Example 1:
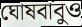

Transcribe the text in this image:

ঘোষবাবুও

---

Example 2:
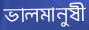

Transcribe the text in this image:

ভালমানুষী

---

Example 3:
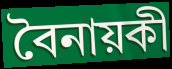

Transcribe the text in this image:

বৈনায়কী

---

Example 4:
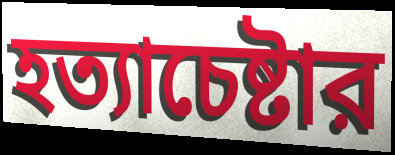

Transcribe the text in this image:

হত্যাচেষ্টার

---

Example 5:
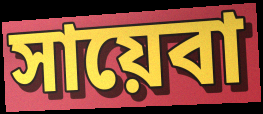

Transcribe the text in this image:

সায়েবা